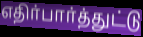
எதிர்பார்த்துட்டு